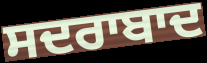
ਸਦਰਾਬਾਦ